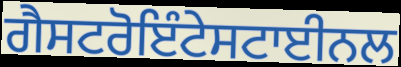
ਗੈਸਟਰੋਇੰਟੇਸਟਾਈਨਲ